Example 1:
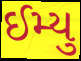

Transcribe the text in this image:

ઈમ્યુ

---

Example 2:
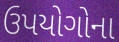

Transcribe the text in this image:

ઉપયોગોના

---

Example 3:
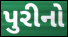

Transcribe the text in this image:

પુરીનો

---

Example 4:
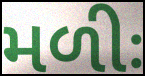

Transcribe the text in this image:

મળીઃ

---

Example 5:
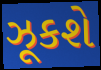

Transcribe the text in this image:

ઝૂકશે